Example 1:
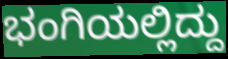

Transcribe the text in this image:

ಭಂಗಿಯಲ್ಲಿದ್ದು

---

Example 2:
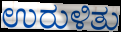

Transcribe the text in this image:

ಉರುಳಿತು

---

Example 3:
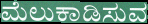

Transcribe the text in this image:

ಮೆಲುಕಾಡಿಸುವ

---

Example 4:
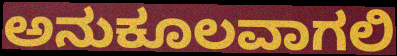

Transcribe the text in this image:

ಅನುಕೂಲವಾಗಲಿ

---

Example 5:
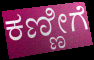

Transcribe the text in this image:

ಕಣ್ಣೀಗೆ